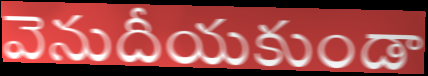
వెనుదీయకుండా